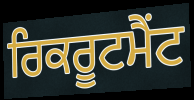
ਰਿਕਰੂਟਮੈਂਟ